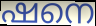
ഷനെ